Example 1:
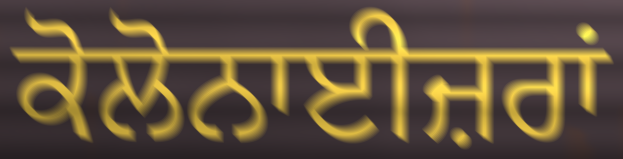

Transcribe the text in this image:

ਕੋਲੋਨਾਈਜ਼ਰਾਂ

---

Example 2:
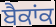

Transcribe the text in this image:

ਬੈਕਾਂਕ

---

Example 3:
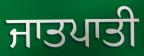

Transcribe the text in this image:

ਜਾਤਪਾਤੀ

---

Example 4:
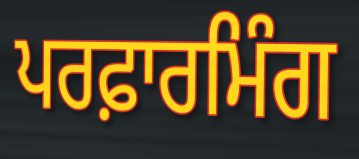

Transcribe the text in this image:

ਪਰਫ਼ਾਰਮਿੰਗ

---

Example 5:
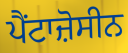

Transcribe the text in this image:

ਪੈਂਟਾਜ਼ੋਸੀਨ